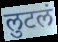
लुटलं